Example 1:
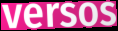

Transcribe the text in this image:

versos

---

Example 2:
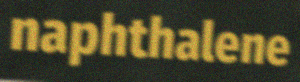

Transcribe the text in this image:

naphthalene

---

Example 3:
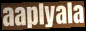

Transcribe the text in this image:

aaplyala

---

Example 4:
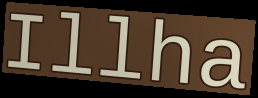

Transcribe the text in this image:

Illha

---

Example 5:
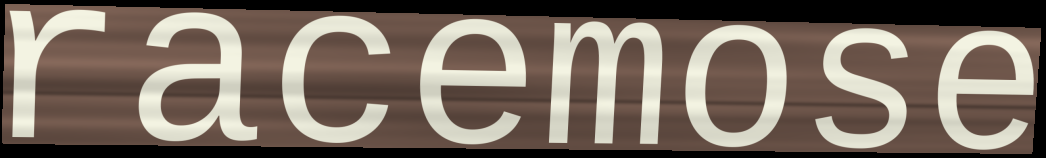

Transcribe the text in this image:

racemose